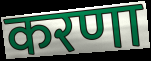
करणा